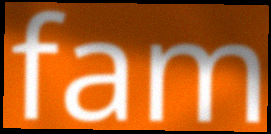
fam